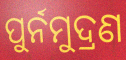
ପୁର୍ନମୁଦ୍ରଣ